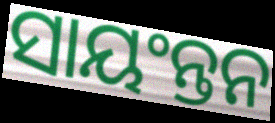
ସାୟଂନ୍ତନ